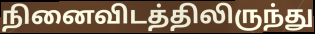
நினைவிடத்திலிருந்து